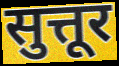
सुत्तूर